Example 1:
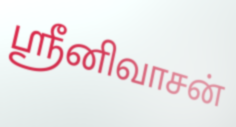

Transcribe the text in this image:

ஸ்ரீனிவாசன்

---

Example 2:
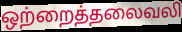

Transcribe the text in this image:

ஒற்றைத்தலைவலி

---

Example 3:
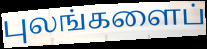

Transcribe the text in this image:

புலங்களைப்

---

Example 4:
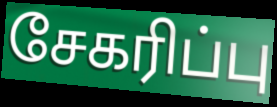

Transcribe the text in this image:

சேகரிப்பு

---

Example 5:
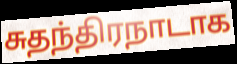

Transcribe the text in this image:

சுதந்திரநாடாக